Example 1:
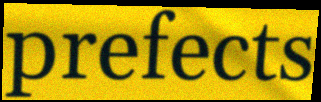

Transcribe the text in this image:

prefects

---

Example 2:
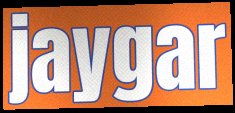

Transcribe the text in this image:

jaygar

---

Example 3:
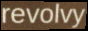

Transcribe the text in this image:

revolvy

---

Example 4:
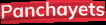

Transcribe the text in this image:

Panchayets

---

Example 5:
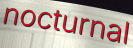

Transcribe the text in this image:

nocturnal